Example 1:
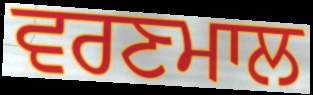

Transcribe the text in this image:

ਵਰਣਮਾਲ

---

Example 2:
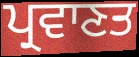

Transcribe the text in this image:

ਪ੍ਰਵਾਣਤ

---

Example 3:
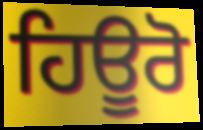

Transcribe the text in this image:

ਹਿਊਰੋ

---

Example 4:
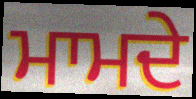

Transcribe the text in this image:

ਮਾਮਦੇ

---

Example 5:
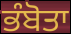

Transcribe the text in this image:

ਭੰਬੋਤਾ